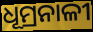
ଧୂମ୍ରନାଳୀ